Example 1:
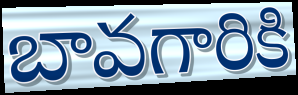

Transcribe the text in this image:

బావగారికి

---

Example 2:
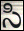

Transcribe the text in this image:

సి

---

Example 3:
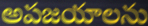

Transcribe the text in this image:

అపజయాలను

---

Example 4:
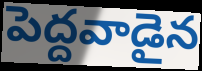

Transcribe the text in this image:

పెద్దవాడైన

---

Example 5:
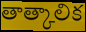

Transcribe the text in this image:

తాత్కాలిక